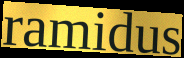
ramidus